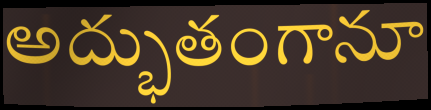
అద్భుతంగానూ